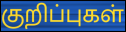
குறிப்புகள்